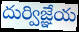
దుర్విజ్ఞేయ